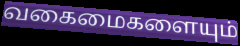
வகைமைகளையும்